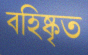
বহিষ্কৃত